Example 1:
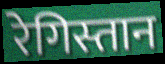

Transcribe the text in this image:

रेगिस्‍तान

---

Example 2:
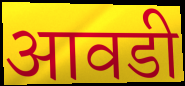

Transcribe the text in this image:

आवडी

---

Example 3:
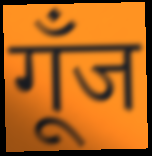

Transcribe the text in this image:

गूँज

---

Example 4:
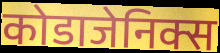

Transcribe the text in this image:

कोडाजेनिक्स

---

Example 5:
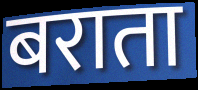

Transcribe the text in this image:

बराता